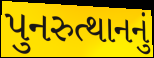
પુનરુત્થાનનું